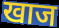
खाज